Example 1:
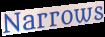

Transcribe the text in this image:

Narrows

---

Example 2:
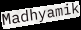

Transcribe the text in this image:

Madhyamik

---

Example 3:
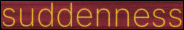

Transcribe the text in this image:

suddenness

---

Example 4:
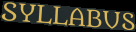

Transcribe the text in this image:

SYLLABUS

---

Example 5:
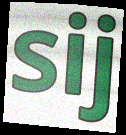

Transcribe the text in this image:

sij